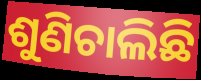
ଶୁଣିଚାଲିଛି